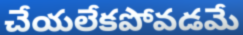
చేయలేకపోవడమే